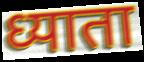
ध्याता